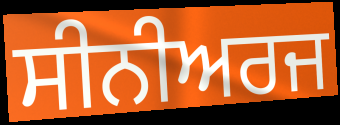
ਸੀਨੀਅਰਜ